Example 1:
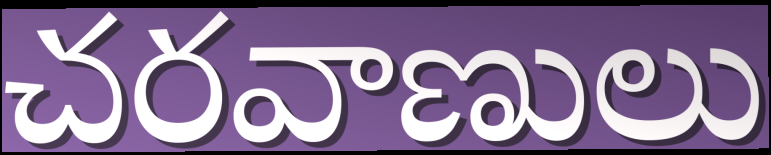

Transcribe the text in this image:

చరవాణులు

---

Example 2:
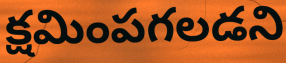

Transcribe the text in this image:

క్షమింపగలడని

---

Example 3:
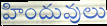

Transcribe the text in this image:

హిందువులు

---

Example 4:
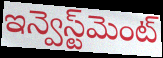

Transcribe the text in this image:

ఇన్వెస్ట్‌మెంట్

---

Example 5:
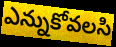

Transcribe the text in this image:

ఎన్నుకోవలసి